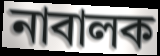
নাবালক